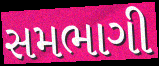
સમભાગી